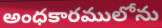
అంధకారములోను